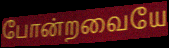
போன்றவையே